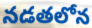
నడతలోన